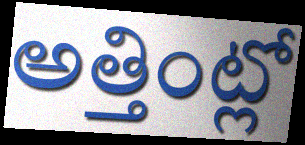
అత్తింట్లో